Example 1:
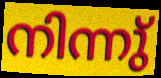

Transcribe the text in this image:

നിന്നു്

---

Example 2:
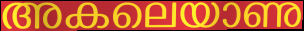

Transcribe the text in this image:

അകലെയാണു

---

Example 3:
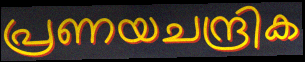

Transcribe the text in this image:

പ്രണയചന്ദ്രിക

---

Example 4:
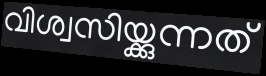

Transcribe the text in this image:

വിശ്വസിയ്ക്കുന്നത്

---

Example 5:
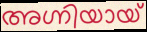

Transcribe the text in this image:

അഗ്നിയായ്